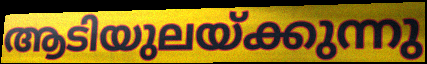
ആടിയുലയ്ക്കുന്നു